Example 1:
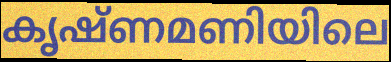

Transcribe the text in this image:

കൃഷ്ണമണിയിലെ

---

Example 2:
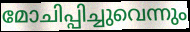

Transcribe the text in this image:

മോചിപ്പിച്ചുവെന്നും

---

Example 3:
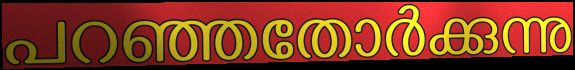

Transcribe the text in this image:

പറഞ്ഞതോർക്കുന്നു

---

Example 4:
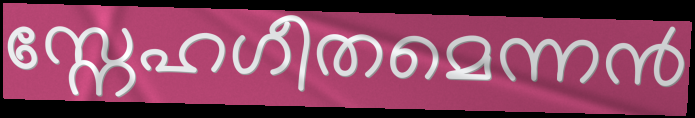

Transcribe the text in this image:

സ്നേഹഗീതമെന്നൻ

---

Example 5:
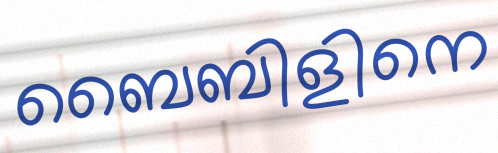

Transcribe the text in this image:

ബൈബിളിനെ